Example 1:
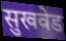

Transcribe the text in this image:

सुखवेड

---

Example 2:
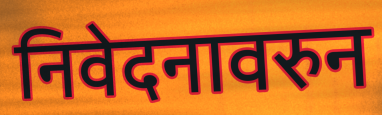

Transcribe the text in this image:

निवेदनावरुन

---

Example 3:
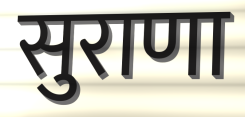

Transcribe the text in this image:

सुराणा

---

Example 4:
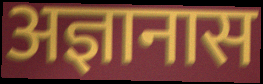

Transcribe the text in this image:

अज्ञानास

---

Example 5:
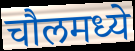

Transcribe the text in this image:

चौलमध्ये